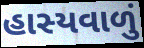
હાસ્યવાળું